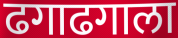
ढगाढगाला